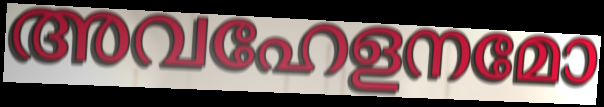
അവഹേളനമോ